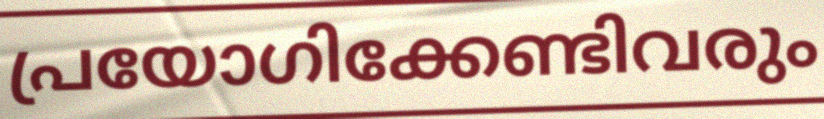
പ്രയോഗിക്കേണ്ടിവരും